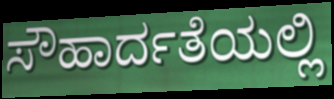
ಸೌಹಾರ್ದತೆಯಲ್ಲಿ